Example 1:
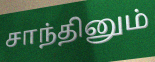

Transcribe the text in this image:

சாந்தினும்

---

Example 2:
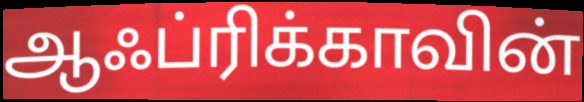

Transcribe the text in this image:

ஆஃப்ரிக்காவின்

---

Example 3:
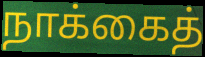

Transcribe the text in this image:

நாக்கைத்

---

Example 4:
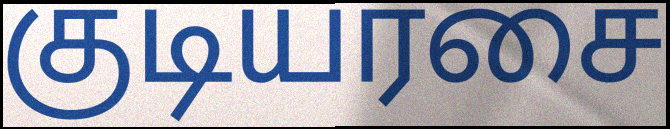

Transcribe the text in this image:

குடியரசை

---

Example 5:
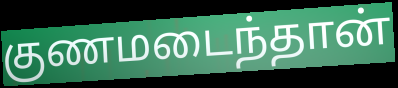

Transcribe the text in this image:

குணமடைந்தான்